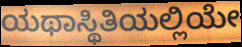
ಯಥಾಸ್ಥಿತಿಯಲ್ಲಿಯೇ